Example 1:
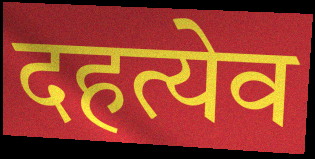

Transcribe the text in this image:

दहत्येव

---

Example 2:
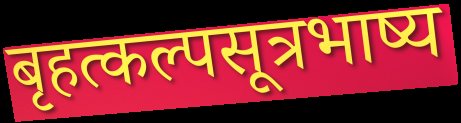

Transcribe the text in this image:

बृहत्कल्पसूत्रभाष्य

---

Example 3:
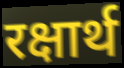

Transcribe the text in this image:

रक्षार्थ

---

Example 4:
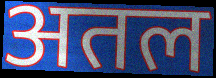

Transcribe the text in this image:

अतल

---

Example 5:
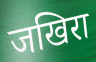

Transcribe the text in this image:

जखिरा